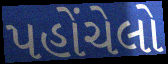
પહોંચેલો